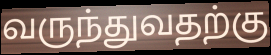
வருந்துவதற்கு